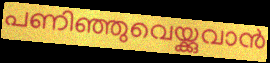
പണിഞ്ഞുവെയ്ക്കുവാൻ